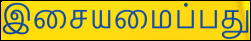
இசையமைப்பது